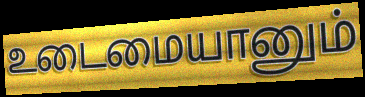
உடைமையானும்